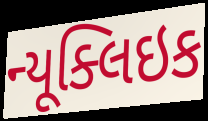
ન્યૂક્લિઇક